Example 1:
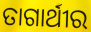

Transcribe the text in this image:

ତାଗାର୍ଥୀର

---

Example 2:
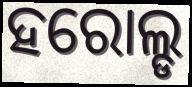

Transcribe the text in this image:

ହରୋଲ୍ଡ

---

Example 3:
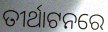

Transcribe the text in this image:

ତୀର୍ଥାଟନରେ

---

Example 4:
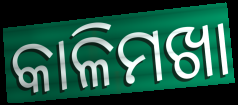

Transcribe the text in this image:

କାଳିମଖା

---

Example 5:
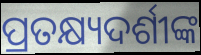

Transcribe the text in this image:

ପ୍ରତକ୍ଷ୍ୟଦର୍ଶୀଙ୍କ